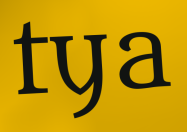
tya